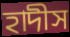
হাদীস